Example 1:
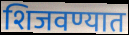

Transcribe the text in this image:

शिजवण्यात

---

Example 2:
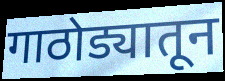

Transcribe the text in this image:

गाठोड्यातून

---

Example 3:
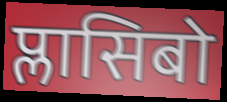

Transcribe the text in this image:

प्लासिबो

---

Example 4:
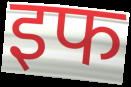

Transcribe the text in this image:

इफ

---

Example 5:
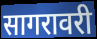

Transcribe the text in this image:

सागरावरी